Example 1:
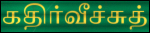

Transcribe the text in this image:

கதிர்வீச்சுத்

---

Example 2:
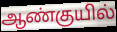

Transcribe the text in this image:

ஆண்குயில்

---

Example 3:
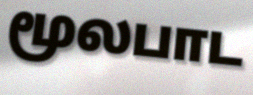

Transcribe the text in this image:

மூலபாட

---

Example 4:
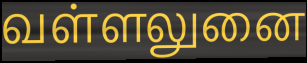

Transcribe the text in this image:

வள்ளலுனை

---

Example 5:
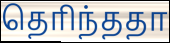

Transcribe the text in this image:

தெரிந்ததா